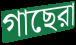
গাছেরা